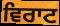
ਵਿਰਾਟ